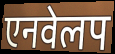
एनवेलप